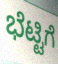
ಭೆಟ್ಟಿಗೆ